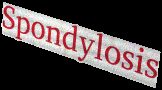
Spondylosis